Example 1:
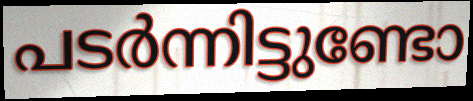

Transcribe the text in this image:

പടർന്നിട്ടുണ്ടോ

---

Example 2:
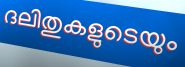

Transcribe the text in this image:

ദലിതുകളുടെയും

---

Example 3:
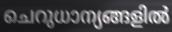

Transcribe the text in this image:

ചെറുധാന്യങ്ങളിൽ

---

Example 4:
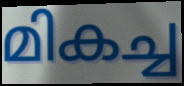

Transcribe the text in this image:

മികച്ച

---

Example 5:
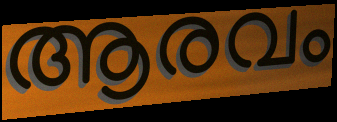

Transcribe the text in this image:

ആരവം